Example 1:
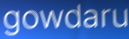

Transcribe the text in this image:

gowdaru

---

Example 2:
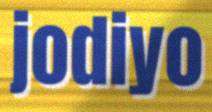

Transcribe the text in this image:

jodiyo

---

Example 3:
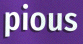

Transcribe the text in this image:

pious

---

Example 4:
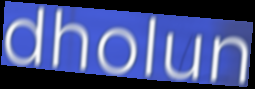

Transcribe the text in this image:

dholun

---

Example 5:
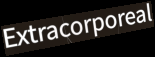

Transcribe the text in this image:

Extracorporeal